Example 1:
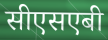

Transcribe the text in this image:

सीएसएबी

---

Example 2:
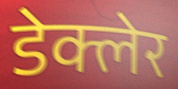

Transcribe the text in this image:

डेक्लेर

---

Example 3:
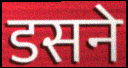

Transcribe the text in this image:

डसने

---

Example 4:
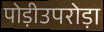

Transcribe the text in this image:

पोड़ीउपरोड़ा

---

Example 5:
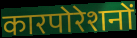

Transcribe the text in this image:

कारपोरेशनों